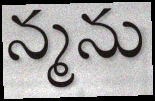
న్మను